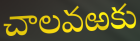
చాలవఱకు